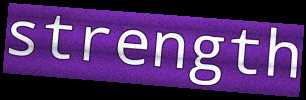
strength